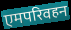
एमपरिवहन